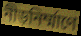
নীড়নির্ম্মাণে